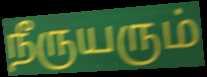
நீருயரும்